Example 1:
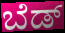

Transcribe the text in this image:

ಬೆಡ್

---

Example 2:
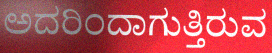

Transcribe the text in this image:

ಅದರಿಂದಾಗುತ್ತಿರುವ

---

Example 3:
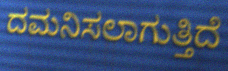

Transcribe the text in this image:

ದಮನಿಸಲಾಗುತ್ತಿದೆ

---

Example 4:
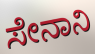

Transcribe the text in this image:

ಸೇನಾನಿ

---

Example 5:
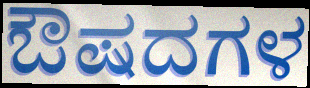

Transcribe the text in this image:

ಔಷದಗಳ